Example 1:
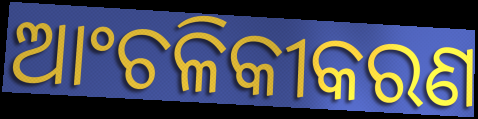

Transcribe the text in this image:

ଆଂଚଳିକୀକରଣ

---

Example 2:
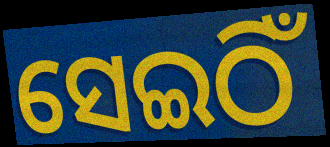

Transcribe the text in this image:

ସେଇଠିଁ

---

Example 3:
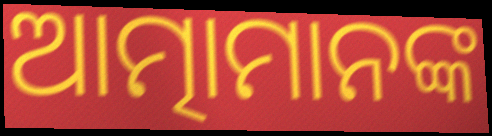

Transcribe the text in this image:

ଆତ୍ମାମାନଙ୍କ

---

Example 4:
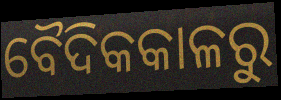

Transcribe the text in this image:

ବୈଦିକକାଳରୁ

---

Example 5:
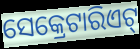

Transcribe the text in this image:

ସେକ୍ରେଟାରିଏଟ୍